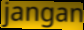
jangan